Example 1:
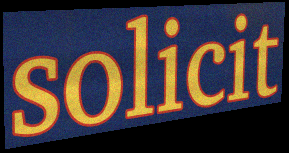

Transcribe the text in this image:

solicit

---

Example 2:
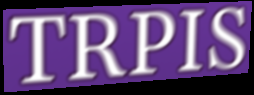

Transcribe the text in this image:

TRPIS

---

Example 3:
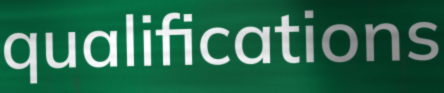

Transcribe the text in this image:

qualifications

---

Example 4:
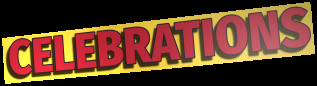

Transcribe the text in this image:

CELEBRATIONS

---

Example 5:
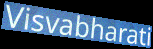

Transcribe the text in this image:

Visvabharati